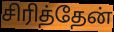
சிரித்தேன்